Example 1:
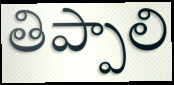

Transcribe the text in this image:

తిప్పాలి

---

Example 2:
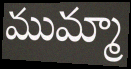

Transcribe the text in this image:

ముమ్మా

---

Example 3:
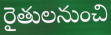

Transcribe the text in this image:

రైతులనుంచి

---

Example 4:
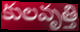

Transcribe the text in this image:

కులవృత్తి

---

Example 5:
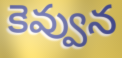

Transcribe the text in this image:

కెవ్వున